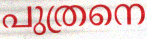
പുത്രനെ